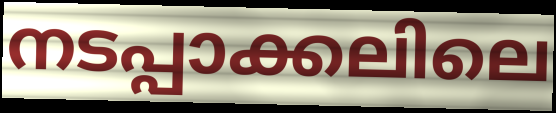
നടപ്പാക്കലിലെ